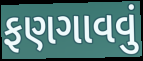
ફણગાવવું